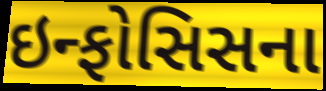
ઇન્ફોસિસના